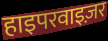
हाइपरवाइज़र